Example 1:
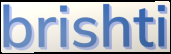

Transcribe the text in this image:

brishti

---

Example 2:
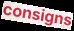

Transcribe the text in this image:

consigns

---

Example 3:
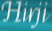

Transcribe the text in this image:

Hirji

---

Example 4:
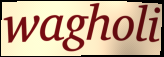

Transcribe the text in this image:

wagholi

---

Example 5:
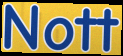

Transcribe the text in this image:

Nott